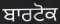
ਬਾਰਟੋਕ